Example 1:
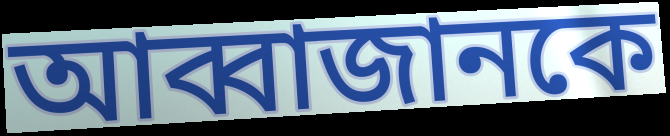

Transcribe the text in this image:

আব্বাজানকে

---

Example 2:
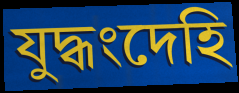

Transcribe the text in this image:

যুদ্ধংদেহি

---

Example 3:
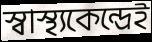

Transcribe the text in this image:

স্বাস্থ্যকেন্দ্রেই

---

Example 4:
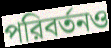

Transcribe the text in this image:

পরিবর্তনও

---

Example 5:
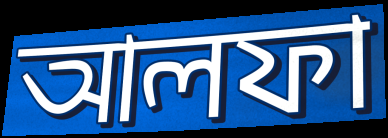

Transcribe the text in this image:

আলফা